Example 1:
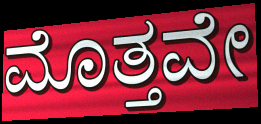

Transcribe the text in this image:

ಮೊತ್ತವೇ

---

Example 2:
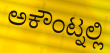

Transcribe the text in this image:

ಅಕೌಂಟ್ನಲ್ಲಿ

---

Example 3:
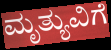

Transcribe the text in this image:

ಮೃತ್ಯುವಿಗೆ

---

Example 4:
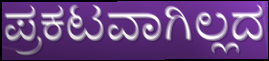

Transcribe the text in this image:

ಪ್ರಕಟವಾಗಿಲ್ಲದ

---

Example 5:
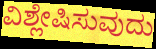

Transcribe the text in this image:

ವಿಶ್ಲೇಷಿಸುವುದು